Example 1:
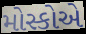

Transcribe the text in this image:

મોસ્કોએ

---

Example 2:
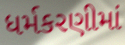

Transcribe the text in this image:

ધર્મકરણીમાં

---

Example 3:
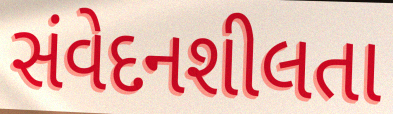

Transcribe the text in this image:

સંવેદનશીલતા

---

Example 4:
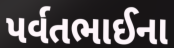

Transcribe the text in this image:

પર્વતભાઈના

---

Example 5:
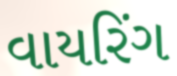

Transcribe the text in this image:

વાયરિંગ